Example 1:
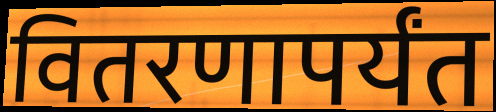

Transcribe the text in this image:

वितरणापर्यंत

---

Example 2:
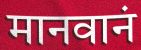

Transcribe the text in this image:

मानवानं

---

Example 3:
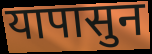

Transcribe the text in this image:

यापासुन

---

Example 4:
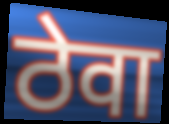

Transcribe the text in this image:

ठेवा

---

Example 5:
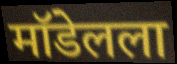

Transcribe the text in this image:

मॉडेलला